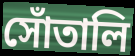
সোঁতালি